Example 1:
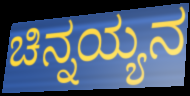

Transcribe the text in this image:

ಚಿನ್ನಯ್ಯನ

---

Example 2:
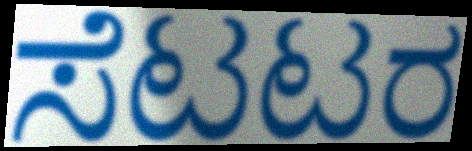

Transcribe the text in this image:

ಸೆಟಟರ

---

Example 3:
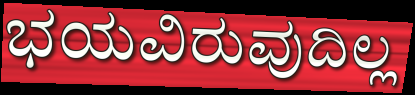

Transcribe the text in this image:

ಭಯವಿರುವುದಿಲ್ಲ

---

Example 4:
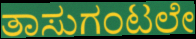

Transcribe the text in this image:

ತಾಸುಗಂಟಲೇ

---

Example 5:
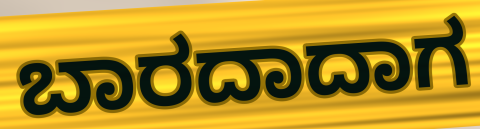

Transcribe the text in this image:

ಬಾರದಾದಾಗ